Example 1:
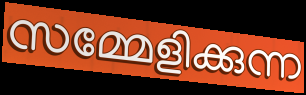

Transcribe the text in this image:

സമ്മേളിക്കുന്ന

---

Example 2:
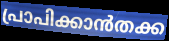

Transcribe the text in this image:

പ്രാപിക്കാൻതക്ക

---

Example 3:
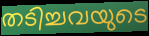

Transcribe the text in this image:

തടിച്ചവയുടെ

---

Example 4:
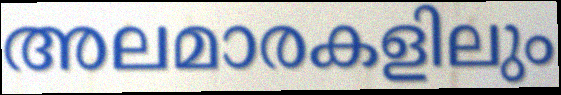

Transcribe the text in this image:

അലമാരകളിലും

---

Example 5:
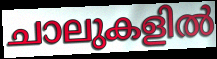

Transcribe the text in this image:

ചാലുകളിൽ